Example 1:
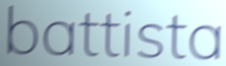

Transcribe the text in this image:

battista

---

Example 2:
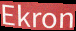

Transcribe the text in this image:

Ekron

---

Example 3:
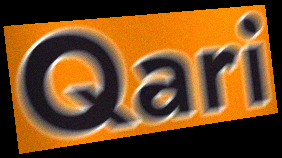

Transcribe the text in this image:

Qari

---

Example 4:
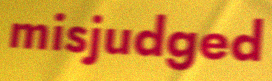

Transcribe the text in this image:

misjudged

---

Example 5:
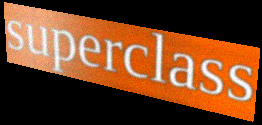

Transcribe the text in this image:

superclass